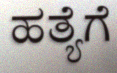
ಹತ್ಯೆಗೆ